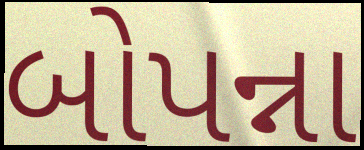
બોપન્ના